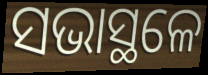
ସଭାସ୍ଥଳେ